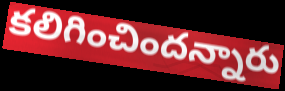
కలిగించిందన్నారు